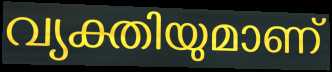
വ്യക്തിയുമാണ്